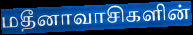
மதீனாவாசிகளின்